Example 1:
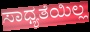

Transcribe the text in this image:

ಸಾಧ್ಯತೆಯಿಲ್ಲ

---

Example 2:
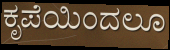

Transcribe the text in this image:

ಕೃಪೆಯಿಂದಲೂ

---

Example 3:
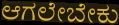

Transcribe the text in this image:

ಆಗಲೇಬೇಕು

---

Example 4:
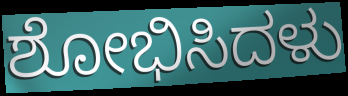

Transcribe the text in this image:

ಶೋಭಿಸಿದಳು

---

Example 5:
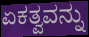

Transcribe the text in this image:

ಏಕತ್ವವನ್ನು